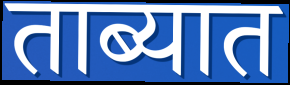
ताब्यात